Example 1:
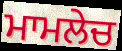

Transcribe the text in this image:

ਮਾਮਲੇਚ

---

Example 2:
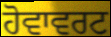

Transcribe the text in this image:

ਹੋਵਾਵਰਟ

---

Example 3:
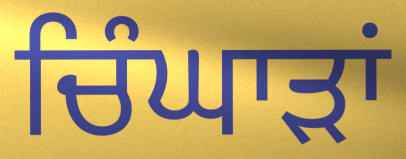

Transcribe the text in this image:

ਚਿੰਘਾੜਾਂ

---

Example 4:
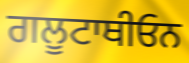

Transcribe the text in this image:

ਗਲੂਟਾਥੀਓਨ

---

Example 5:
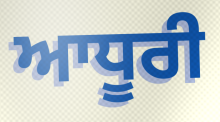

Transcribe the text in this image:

ਆਧੂਰੀ